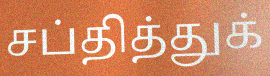
சப்தித்துக்